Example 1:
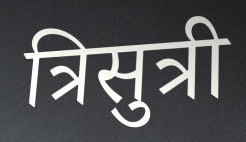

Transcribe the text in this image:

त्रिसुत्री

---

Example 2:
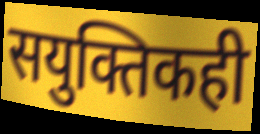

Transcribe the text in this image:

सयुक्तिकही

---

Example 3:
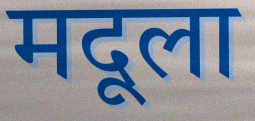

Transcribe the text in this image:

मदूला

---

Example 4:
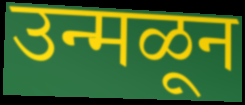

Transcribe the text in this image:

उन्मळून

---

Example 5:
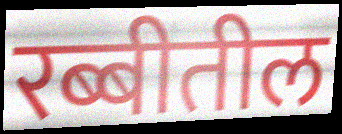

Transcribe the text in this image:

रब्बीतील